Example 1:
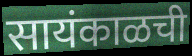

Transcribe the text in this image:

सायंकाळची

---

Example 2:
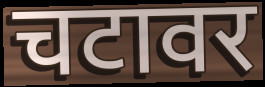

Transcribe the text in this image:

चटावर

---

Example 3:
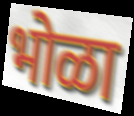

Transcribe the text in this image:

भोळा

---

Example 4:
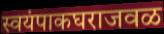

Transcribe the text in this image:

स्वयंपाकघराजवळ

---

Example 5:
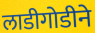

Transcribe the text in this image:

लाडीगोडीने